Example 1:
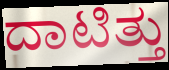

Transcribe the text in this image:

ದಾಟಿತ್ತು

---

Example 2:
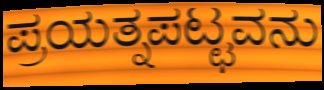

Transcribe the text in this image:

ಪ್ರಯತ್ನಪಟ್ಟವನು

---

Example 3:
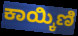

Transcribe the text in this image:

ಕಾಯ್ಕಿಣಿ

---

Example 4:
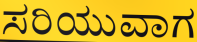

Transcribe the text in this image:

ಸರಿಯುವಾಗ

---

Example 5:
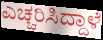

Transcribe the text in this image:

ಎಚ್ಚರಿಸಿದ್ದಾಳೆ